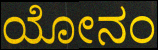
ಯೋನಂ